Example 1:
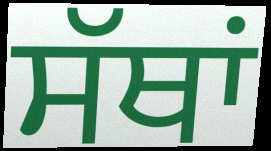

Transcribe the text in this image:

ਸੱਥਾਂ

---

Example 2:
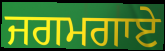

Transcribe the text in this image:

ਜਗਮਗਾਏ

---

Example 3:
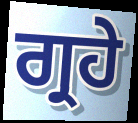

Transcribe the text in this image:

ਗ੍ਰਹੇ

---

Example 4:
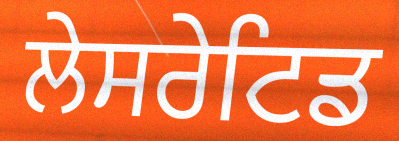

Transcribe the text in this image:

ਲੇਸਰੇਟਿਡ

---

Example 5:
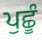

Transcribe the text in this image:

ਪੁਛੂੰ